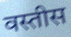
वस्तीस